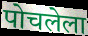
पोचलेला